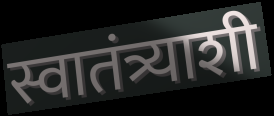
स्वातंत्र्याशी